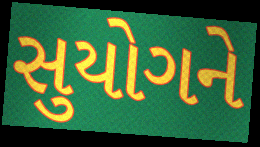
સુયોગને